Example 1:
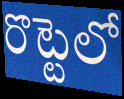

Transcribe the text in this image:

రొట్టెలో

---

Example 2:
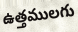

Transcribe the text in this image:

ఉత్తములగు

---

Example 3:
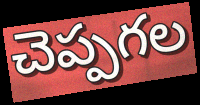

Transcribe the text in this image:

చెప్పగల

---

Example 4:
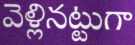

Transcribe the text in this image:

వెళ్లినట్టుగా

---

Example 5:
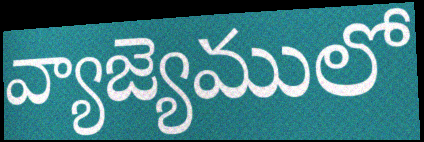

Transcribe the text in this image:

వ్యాజ్యెములో